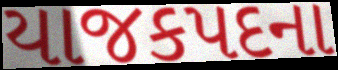
યાજકપદના